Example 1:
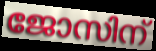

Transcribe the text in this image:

ജോസിന്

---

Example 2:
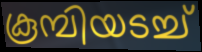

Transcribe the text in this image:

കൂമ്പിയടച്ച്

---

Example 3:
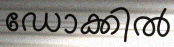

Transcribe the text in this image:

ഡോക്കിൽ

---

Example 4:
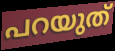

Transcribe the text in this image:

പറയുത്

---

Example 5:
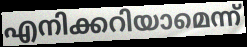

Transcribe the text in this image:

എനിക്കറിയാമെന്ന്